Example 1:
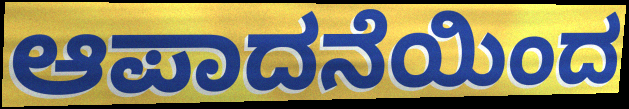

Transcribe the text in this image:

ಆಪಾದನೆಯಿಂದ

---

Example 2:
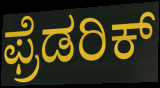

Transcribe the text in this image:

ಫ್ರೆಡರಿಕ್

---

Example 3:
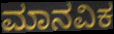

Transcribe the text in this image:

ಮಾನವಿಕ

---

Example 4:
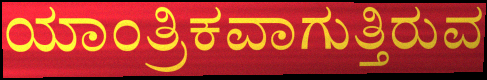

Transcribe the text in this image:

ಯಾಂತ್ರಿಕವಾಗುತ್ತಿರುವ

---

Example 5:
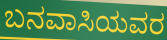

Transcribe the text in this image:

ಬನವಾಸಿಯವರ